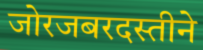
जोरजबरदस्तीने